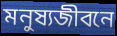
মনুষ্যজীবনে